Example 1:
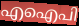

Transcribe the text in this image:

എഐപി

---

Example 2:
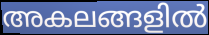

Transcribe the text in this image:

അകലങ്ങളിൽ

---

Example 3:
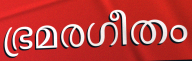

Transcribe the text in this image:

ഭ്രമരഗീതം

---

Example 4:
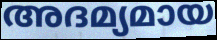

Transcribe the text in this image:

അദമ്യമായ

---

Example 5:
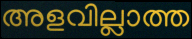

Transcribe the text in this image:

അളവില്ലാത്ത